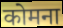
कोमना